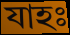
যাহঃ